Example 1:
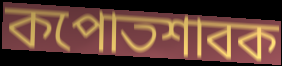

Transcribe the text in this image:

কপোতশাবক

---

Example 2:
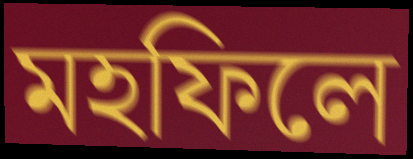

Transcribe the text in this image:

মহফিলে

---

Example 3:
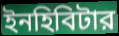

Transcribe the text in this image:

ইনহিবিটার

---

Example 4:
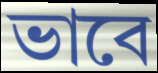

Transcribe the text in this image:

ভাবে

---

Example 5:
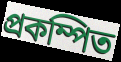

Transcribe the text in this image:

প্রকম্পিত